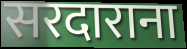
सरदाराना